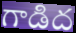
గాడిద